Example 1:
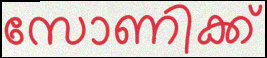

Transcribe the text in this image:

സോണിക്ക്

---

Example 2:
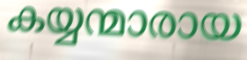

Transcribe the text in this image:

കയ്യന്മാരായ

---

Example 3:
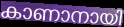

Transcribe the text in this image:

കാണാനായി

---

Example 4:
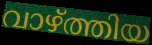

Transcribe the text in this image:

വാഴ്ത്തിയ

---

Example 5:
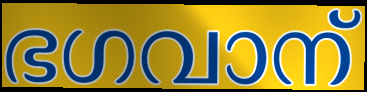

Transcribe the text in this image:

ഭഗവാന്